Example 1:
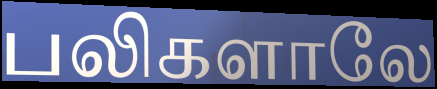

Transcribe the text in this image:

பலிகளாலே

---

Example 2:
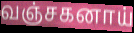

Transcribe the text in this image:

வஞ்சகனாய்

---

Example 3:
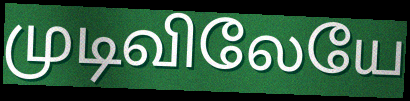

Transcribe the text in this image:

முடிவிலேயே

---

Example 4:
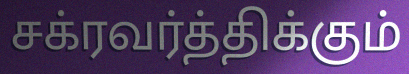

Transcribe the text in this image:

சக்ரவர்த்திக்கும்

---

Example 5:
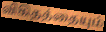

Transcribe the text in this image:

விகிதத்தையும்